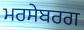
ਮਰਸੇਬਰਗ